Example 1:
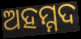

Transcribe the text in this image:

ଅହମ୍ମଦ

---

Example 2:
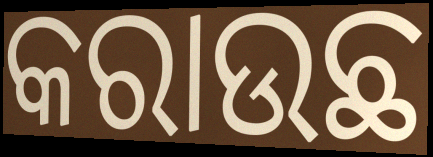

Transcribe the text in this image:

କରାଉଛ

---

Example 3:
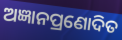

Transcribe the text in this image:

ଅଜ୍ଞାନପ୍ରଣୋଦିତ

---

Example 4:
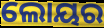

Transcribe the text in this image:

ଲୋୟର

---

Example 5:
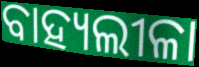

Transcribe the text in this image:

ବାହ୍ୟଲୀଳା